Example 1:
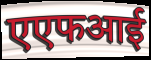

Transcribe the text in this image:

एएफआई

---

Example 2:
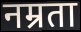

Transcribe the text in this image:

नम्रता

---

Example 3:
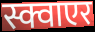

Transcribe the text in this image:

स्क्वाएर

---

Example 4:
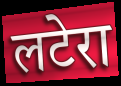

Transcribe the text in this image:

लटेरा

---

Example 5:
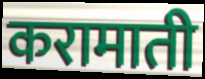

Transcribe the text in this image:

करामाती